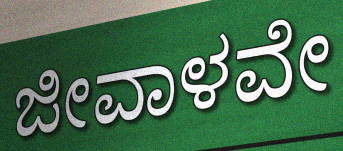
ಜೀವಾಳವೇ